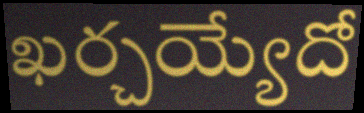
ఖర్చయ్యేదో